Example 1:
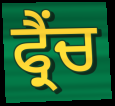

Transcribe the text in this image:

ਫ੍ਰੈਂਚ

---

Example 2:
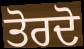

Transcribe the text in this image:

ਤੋਰਦੋ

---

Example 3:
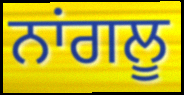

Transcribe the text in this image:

ਨਾਂਗਲੂ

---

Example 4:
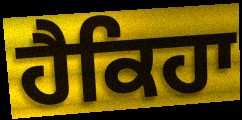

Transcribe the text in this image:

ਹੈਕਿਹਾ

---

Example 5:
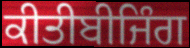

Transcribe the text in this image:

ਕੀਤੀਬੀਜਿੰਗ